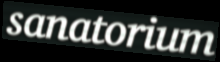
sanatorium